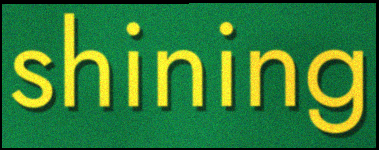
shining